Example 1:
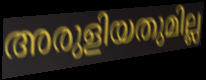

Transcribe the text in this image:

അരുളിയതുമില്ല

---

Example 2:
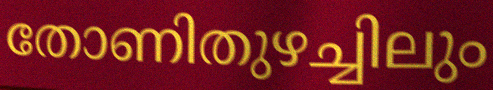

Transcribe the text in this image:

തോണിതുഴച്ചിലും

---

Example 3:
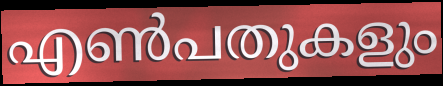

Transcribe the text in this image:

എൺപതുകളും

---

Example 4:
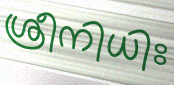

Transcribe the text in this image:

ശ്രീനിധിഃ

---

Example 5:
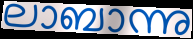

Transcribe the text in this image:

ലാബാന്നു